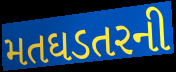
મતઘડતરની